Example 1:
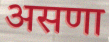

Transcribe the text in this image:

असणा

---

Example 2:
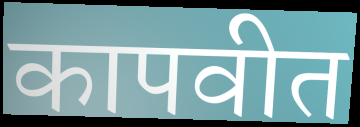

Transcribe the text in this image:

कापवीत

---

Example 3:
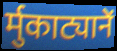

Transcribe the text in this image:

र्मुकाट्यानें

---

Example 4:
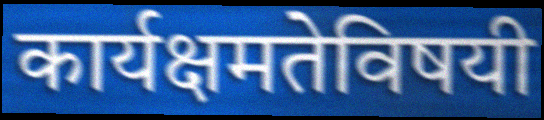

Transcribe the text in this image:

कार्यक्षमतेविषयी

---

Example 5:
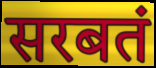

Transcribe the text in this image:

सरबतं